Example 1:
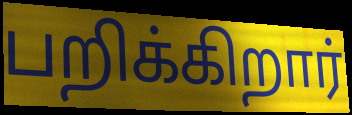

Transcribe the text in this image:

பறிக்கிறார்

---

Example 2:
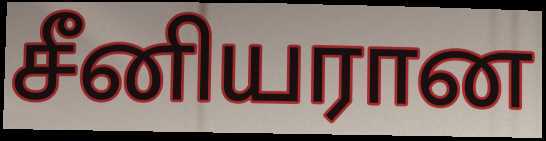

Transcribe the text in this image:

சீனியரான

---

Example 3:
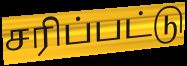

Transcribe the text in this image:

சரிப்பட்டு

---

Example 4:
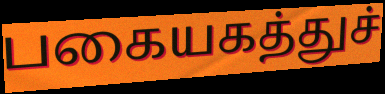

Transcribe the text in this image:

பகையகத்துச்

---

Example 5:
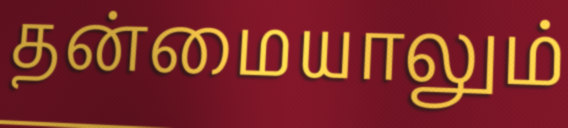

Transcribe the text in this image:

தன்மையாலும்